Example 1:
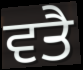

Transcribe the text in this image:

ਵਤੈ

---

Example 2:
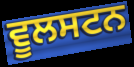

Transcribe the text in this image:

ਵੂਲਸਟਨ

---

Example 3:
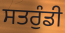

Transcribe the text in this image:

ਸਤਰੁੰਡੀ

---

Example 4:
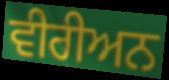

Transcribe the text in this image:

ਵੀਰੀਅਨ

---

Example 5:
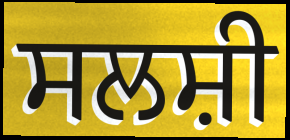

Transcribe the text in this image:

ਸਲਸ਼ੀ